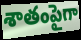
శాతంపైగా